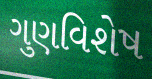
ગુણવિશેષ